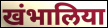
खंभालिया